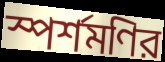
স্পর্শমণির